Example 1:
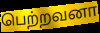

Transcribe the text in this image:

பெற்றவனா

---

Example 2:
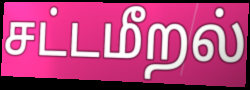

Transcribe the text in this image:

சட்டமீறல்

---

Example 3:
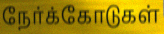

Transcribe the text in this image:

நேர்க்கோடுகள்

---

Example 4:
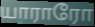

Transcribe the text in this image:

யாராரோ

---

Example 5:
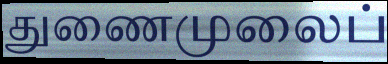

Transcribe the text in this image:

துணைமுலைப்